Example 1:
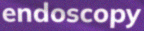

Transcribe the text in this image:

endoscopy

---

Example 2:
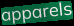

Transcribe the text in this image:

apparels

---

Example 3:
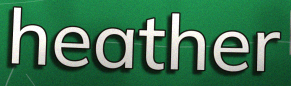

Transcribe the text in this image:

heather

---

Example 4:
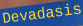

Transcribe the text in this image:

Devadasis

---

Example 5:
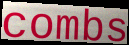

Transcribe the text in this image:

combs